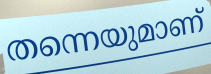
തന്നെയുമാണ്